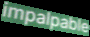
impalpable